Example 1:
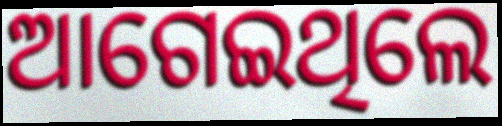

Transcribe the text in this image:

ଆଗେଇଥିଲେ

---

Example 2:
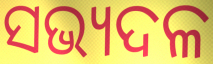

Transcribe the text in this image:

ସଭ୍ୟଦଳ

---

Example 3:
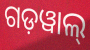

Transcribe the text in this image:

ଗଡ଼ୱାଲ୍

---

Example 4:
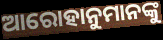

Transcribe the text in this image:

ଆରୋହାନୁମାନଙ୍କୁ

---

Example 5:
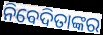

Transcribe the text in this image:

ନିବେଦିତାଙ୍କର